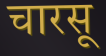
चारसू